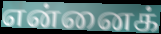
என்னைக்